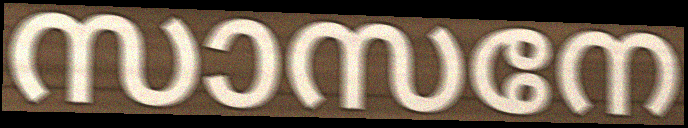
സാസനേ